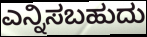
ಎನ್ನಿಸಬಹುದು